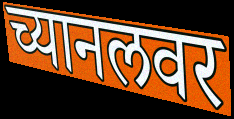
च्यानलवर